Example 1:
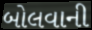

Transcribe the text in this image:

બોલવાની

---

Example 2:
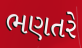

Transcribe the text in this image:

ભણતરે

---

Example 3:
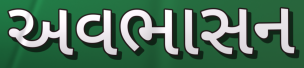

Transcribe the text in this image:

અવભાસન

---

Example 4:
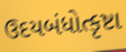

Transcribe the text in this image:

ઉદયબંધોત્કૃષ્ટા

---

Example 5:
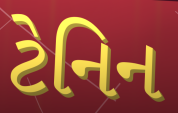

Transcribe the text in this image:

ટેનિન